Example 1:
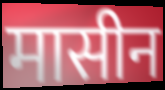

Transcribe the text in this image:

मासीन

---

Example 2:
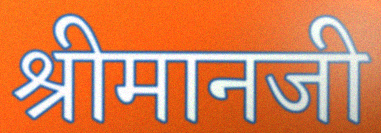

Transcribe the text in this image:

श्रीमानजी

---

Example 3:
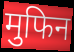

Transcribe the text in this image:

मुफिन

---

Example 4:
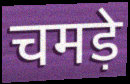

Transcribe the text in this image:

चमड़े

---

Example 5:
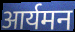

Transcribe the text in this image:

आर्यमन